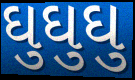
ઘુઘુઘુ